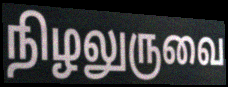
நிழலுருவை